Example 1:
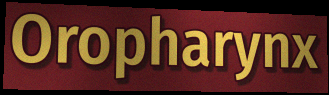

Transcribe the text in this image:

Oropharynx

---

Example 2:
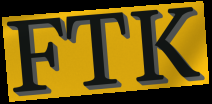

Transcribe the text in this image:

FTK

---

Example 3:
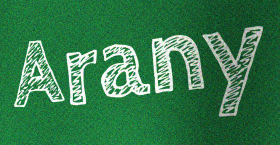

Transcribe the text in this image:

Arany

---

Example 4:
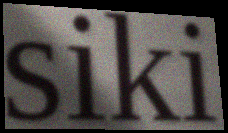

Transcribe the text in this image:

siki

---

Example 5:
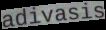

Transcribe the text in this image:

adivasis